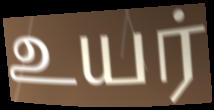
உயர்